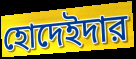
হোদেইদার